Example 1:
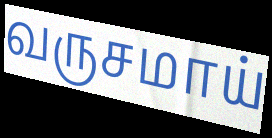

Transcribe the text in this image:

வருசமாய்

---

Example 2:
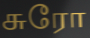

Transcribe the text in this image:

சுரோ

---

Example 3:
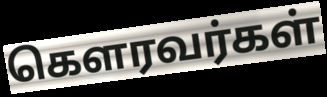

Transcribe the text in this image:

கௌரவர்கள்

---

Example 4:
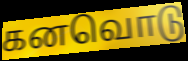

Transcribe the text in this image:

கனவொடு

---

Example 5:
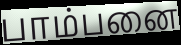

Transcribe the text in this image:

பாம்பனை